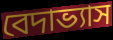
বেদাভ্যাস